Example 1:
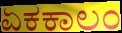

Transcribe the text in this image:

ಏಕಕಾಲಂ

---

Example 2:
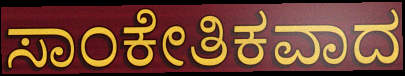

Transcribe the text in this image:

ಸಾಂಕೇತಿಕವಾದ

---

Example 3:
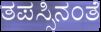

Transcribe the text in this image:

ತಪಸ್ಸಿನಂತೆ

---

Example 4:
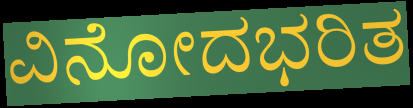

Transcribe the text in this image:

ವಿನೋದಭರಿತ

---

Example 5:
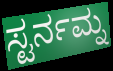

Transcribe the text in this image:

ಸ್ಟರ್ನಮ್ನ